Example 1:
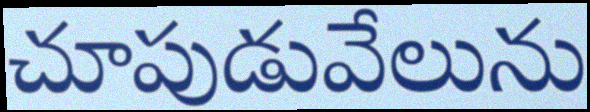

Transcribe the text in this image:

చూపుడువేలును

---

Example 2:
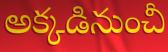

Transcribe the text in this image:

అక్కడినుంచీ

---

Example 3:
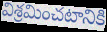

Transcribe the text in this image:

విశ్రమించటానికి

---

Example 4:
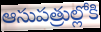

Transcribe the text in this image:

ఆసుపత్రుల్లోకి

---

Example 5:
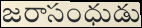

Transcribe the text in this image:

జరాసంధుడు